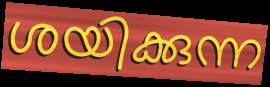
ശയിക്കുന്ന